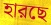
হারছে